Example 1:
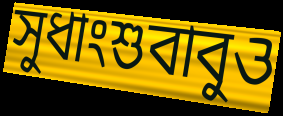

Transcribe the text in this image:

সুধাংশুবাবুও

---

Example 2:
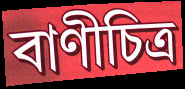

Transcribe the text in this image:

বাণীচিত্র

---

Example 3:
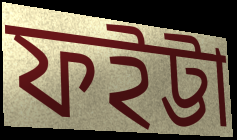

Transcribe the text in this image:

ফইট্টা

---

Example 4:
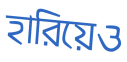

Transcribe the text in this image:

হারিয়েও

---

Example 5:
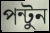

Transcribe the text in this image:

পন্টুন